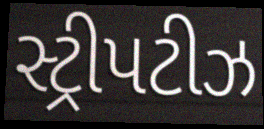
સ્ટ્રીપટીઝ